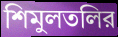
শিমুলতলির